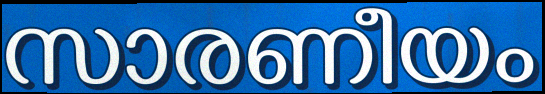
സാരണീയം